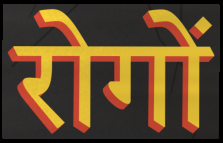
रोगों